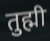
तुह्मी